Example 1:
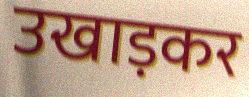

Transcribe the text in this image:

उखाड़कर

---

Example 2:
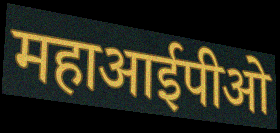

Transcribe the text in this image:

महाआईपीओ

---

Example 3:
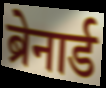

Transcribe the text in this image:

ब्रेनार्ड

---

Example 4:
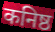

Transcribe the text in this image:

कनिष्ठ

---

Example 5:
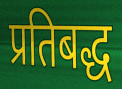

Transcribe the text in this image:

प्रतिबद्ध